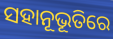
ସହାନୂଭୂତିରେ